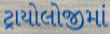
ટ્રાયોલોજીમાં